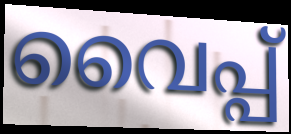
വൈപ്പ്